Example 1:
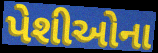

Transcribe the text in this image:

પેશીઓના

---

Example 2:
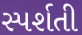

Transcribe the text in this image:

સ્પર્શતી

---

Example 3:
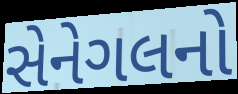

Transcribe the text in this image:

સેનેગલનો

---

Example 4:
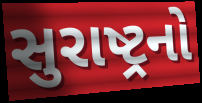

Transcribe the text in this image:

સુરાષ્ટ્રનો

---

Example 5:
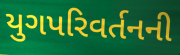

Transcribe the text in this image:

યુગપરિવર્તનની